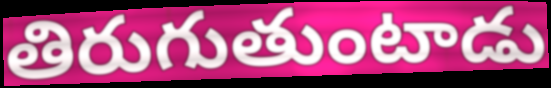
తిరుగుతుంటాడు